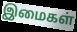
இமைகள்